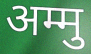
अम्मु